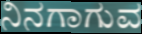
ನಿನಗಾಗುವ